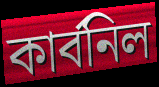
কার্বনিল